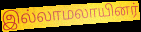
இல்லாமலாயினர்